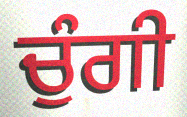
ਚੁੰਗੀ